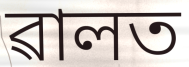
ৱালত